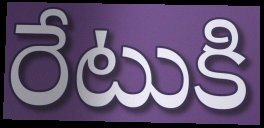
రేటుకి